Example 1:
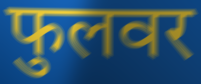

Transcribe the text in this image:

फुलवर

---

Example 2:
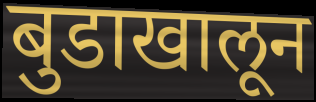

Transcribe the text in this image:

बुडाखालून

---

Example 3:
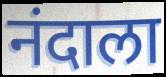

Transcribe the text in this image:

नंदाला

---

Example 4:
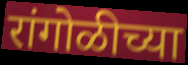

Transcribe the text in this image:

रांगोळीच्या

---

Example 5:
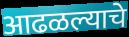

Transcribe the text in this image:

आढळल्याचे